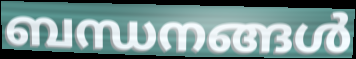
ബന്ധനങ്ങൾ